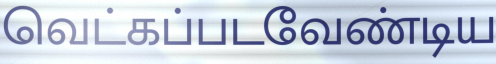
வெட்கப்படவேண்டிய